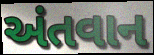
અંતવાન